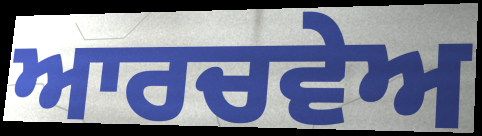
ਆਰਚਵੇਅ